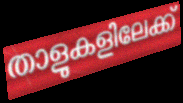
താളുകളിലേക്ക്